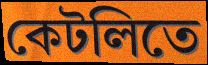
কেটলিতে